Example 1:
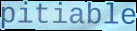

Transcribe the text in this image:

pitiable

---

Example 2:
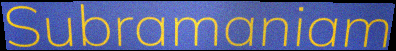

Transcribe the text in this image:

Subramaniam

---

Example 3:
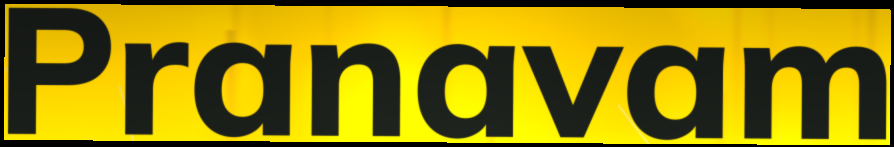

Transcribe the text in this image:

Pranavam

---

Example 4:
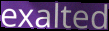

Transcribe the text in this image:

exalted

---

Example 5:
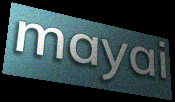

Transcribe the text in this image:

mayai